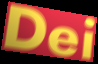
Dei